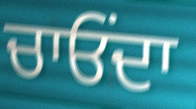
ਚਾਓਂਦਾ